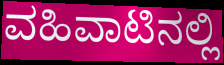
ವಹಿವಾಟಿನಲ್ಲಿ